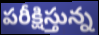
పరీక్షిస్తున్న